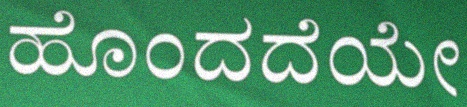
ಹೊಂದದೆಯೇ